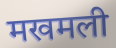
मखमली